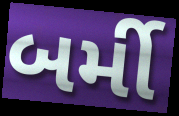
બર્મી